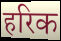
हरिक